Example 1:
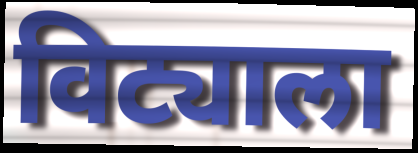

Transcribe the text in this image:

विट्याला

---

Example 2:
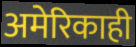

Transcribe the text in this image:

अमेरिकाही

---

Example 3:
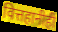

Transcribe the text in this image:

वित्तहानीही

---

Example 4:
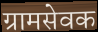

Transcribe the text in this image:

ग्रामसेवक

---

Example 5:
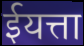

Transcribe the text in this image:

ईयत्ता